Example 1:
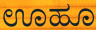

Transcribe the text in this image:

ಊಹೂ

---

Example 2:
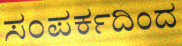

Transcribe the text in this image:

ಸಂಪರ್ಕದಿಂದ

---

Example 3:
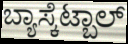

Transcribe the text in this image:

ಬ್ಯಾಸ್ಕೆಟ್ಬಾಲ್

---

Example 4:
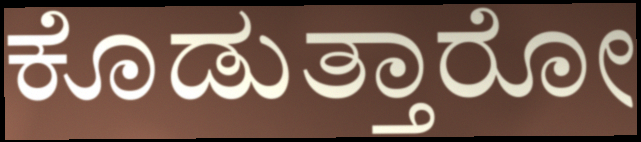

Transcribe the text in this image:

ಕೊಡುತ್ತಾರೋ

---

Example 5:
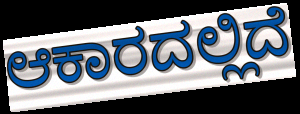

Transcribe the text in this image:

ಆಕಾರದಲ್ಲಿದೆ